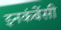
इनकंबेंसी